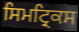
ਸਿਮਟ੍ਰਿਕਸ